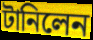
টানিলেন